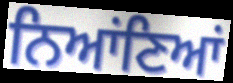
ਨਿਆਂਣਿਆਂ